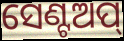
ସେଣ୍ଟଅପ୍